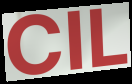
CIL